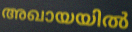
അഖായയിൽ